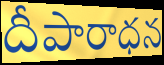
దీపారాధన